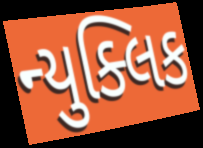
ન્યુક્લિક